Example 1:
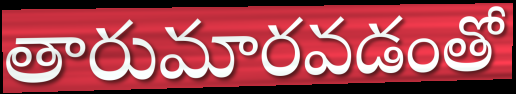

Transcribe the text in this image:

తారుమారవడంతో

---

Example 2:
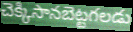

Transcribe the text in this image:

చెక్కిసానబెట్టగలడు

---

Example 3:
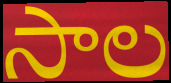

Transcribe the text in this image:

సాల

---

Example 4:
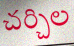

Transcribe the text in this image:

చర్చిల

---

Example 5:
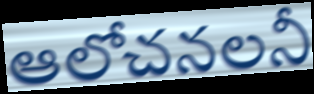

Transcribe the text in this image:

ఆలోచనలనీ